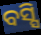
ବସ୍ସି